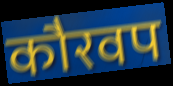
कौरवप